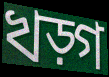
খড়্গ